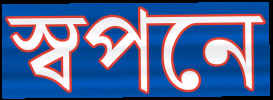
স্বপনে